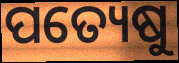
ପତ୍ୟେଷୁ